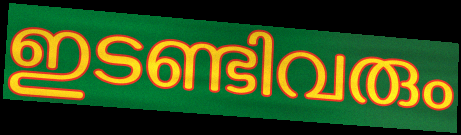
ഇടണ്ടിവരും